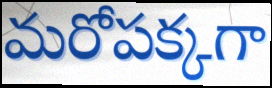
మరోపక్కగా